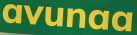
avunaa